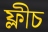
ফ্লীচ